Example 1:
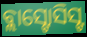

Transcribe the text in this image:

ବ୍ଲାସ୍ଟୋସିସ୍ଟ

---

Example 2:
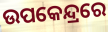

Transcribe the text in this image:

ଉପକେନ୍ଦ୍ରରେ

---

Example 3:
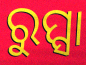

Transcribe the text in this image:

ରୁପ୍ସା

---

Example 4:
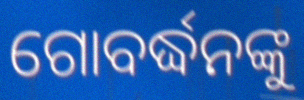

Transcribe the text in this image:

ଗୋବର୍ଦ୍ଧନଙ୍କୁ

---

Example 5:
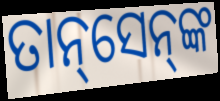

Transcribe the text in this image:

ତାନ୍‌ସେନ୍‌ଙ୍କ